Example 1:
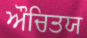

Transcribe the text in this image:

ਔਚਿਤਯ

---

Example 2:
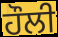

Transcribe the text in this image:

ਹੌਲੀ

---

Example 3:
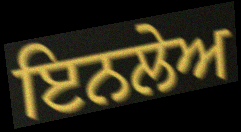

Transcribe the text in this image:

ਇਨਲੇਅ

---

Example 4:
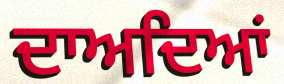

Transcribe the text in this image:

ਦਾਅਦਿਆਂ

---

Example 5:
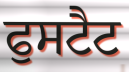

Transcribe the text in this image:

ਫੁਸਟੈਟ